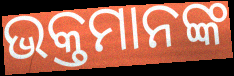
ଭକ୍ତମାନଙ୍କ